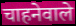
चाहनेवाले